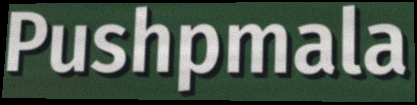
Pushpmala